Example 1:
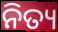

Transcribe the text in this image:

ନିତ୍ୟ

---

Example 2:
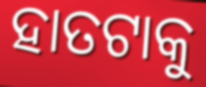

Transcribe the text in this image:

ହାତଟାକୁ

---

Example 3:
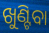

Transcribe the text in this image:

ଖୁଣ୍ଟିବା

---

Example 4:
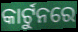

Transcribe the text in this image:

କାର୍ଟୁନରେ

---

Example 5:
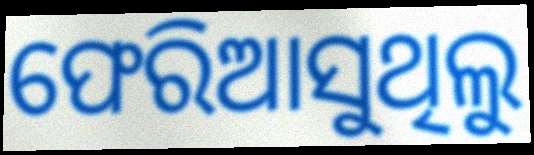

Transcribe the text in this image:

ଫେରିଆସୁଥିଲୁ